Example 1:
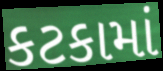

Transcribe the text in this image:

કટકામાં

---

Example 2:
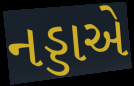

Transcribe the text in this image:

નડ્ડાએ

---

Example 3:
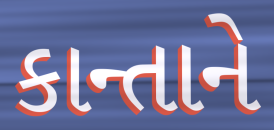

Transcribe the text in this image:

કાન્તાને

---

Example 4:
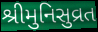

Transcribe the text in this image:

શ્રીમુનિસુવ્રત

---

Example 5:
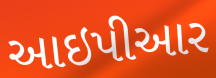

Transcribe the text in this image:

આઇપીઆર